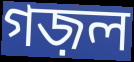
গজ়ল